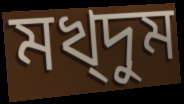
মখ্দুম